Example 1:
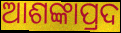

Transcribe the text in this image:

ଆଶଙ୍କାପ୍ରଦ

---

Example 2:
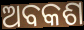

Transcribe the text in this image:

ଅବକଶ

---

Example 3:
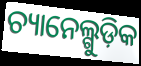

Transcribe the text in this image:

ଚ୍ୟାନେଲ୍ଗୁଡ଼ିକ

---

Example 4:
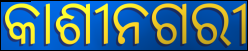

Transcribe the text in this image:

କାଶୀନଗରୀ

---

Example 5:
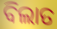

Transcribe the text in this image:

ବିଲାତ